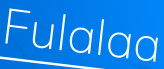
Fulalaa